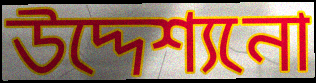
উদ্দেশ্যনো